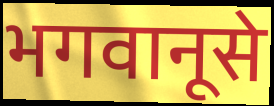
भगवानूसे